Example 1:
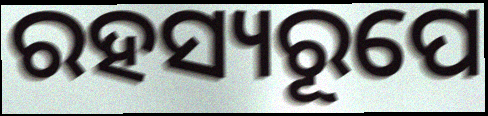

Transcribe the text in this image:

ରହସ୍ୟରୂପେ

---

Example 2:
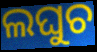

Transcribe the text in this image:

ଲଘୁଚ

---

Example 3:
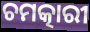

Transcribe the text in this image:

ଚମତ୍କାରୀ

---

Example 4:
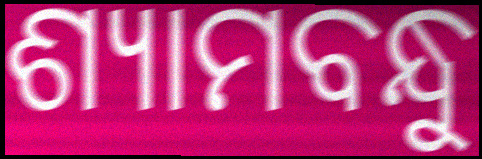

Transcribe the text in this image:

ଶ୍ୟାମବନ୍ଧୁ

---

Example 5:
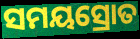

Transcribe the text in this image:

ସମୟସ୍ରୋତ